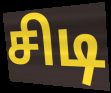
சிடி